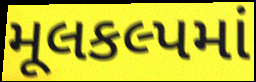
મૂલકલ્પમાં